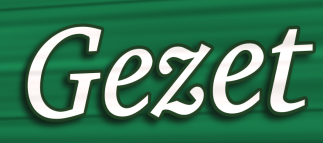
Gezet